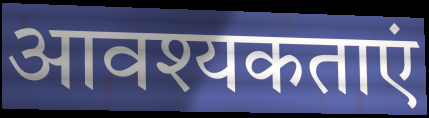
आवश्‍यकताएं